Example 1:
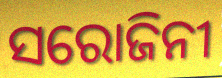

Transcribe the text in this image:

ସରୋଜିନୀ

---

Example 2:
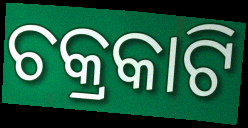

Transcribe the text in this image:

ଚକ୍ରକାଟି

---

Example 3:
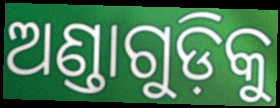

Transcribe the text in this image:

ଅଣ୍ଡାଗୁଡ଼ିକୁ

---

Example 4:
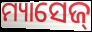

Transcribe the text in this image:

ମ୍ୟାସେଜ୍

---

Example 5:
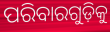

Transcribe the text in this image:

ପରିବାରଗୁଡ଼ିକୁ